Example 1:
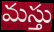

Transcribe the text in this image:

మస్తు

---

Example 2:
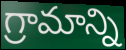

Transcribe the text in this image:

గ్రామాన్ని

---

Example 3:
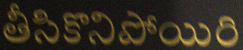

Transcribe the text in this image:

తీసికొనిపోయిరి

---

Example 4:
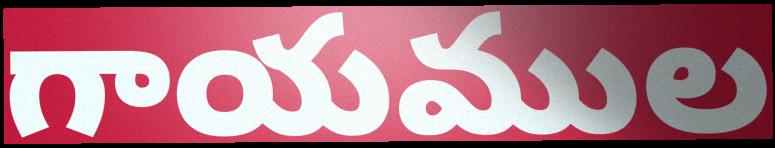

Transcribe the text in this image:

గాయముల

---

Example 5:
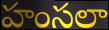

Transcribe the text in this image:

హంసలా